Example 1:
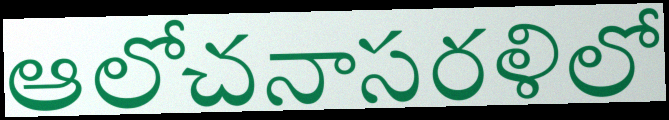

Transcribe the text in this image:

ఆలోచనాసరళిలో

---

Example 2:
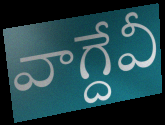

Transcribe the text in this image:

వాగ్దేవీ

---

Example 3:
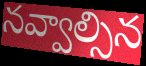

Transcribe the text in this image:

నవ్వాల్సిన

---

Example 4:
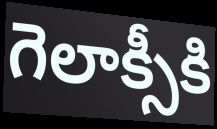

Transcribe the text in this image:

గెలాక్సీకి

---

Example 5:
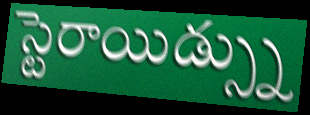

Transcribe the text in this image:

స్టెరాయిడ్స్ను